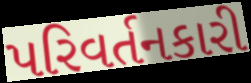
પરિવર્તનકારી